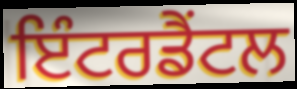
ਇੰਟਰਡੈਂਟਲ